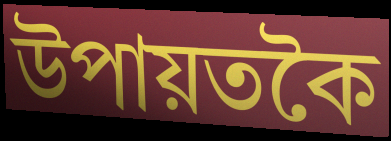
উপায়তকৈ